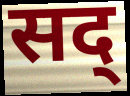
सद्